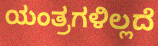
ಯಂತ್ರಗಳಿಲ್ಲದೆ